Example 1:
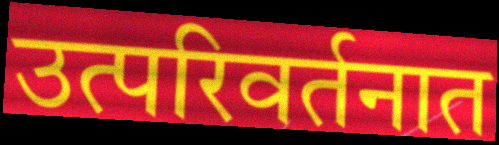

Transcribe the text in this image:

उत्परिवर्तनात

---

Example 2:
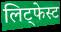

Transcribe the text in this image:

लिट्फेस्ट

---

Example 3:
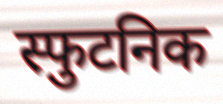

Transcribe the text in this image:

स्फुटनिक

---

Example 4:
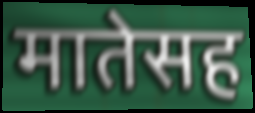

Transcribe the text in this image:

मातेसह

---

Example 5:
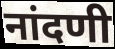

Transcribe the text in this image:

नांदणी